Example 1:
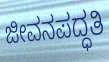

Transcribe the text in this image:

ಜೀವನಪದ್ಧತಿ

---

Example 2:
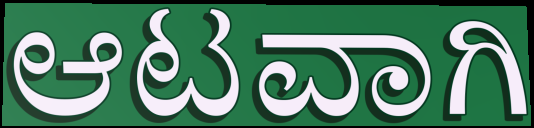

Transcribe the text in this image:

ಆಟವಾಗಿ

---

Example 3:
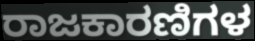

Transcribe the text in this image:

ರಾಜಕಾರಣಿಗಳ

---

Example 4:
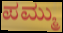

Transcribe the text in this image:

ಪಮ್ಮು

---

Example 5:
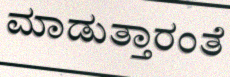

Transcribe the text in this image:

ಮಾಡುತ್ತಾರಂತೆ